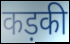
कड़की